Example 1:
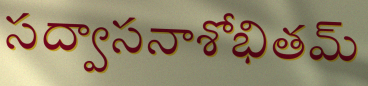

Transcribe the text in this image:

సద్వాసనాశోభితమ్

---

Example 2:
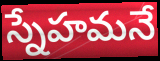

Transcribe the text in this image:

స్నేహమనే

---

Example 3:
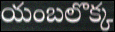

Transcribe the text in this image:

యంబలొక్క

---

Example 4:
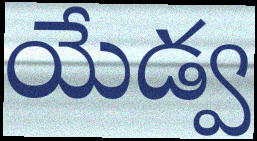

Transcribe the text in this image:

యేడ్వ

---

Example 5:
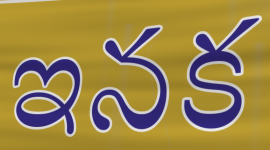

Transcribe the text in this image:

ఇనక